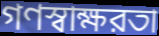
গণস্বাক্ষরতা